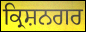
ਕ੍ਰਿਸ਼ਨਗਰ